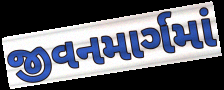
જીવનમાર્ગમાં